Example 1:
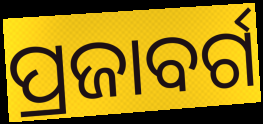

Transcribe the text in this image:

ପ୍ରଜାବର୍ଗ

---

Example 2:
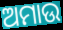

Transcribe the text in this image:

ଅମାଉ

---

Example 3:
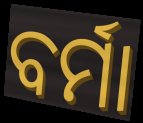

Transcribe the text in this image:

ବର୍ମା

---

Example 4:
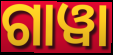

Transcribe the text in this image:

ଗାୱା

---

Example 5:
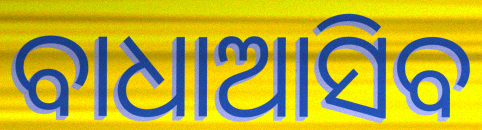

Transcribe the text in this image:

ବାଧାଆସିବ